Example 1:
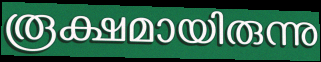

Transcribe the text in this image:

രൂക്ഷമായിരുന്നു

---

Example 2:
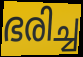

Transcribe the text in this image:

ഭരിച്ച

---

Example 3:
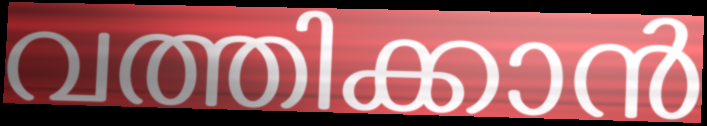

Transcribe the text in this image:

വത്തിക്കാൻ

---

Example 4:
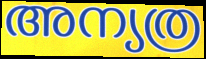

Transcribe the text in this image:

അന്യത്ര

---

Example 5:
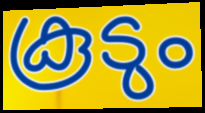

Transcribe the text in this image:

കൂടും